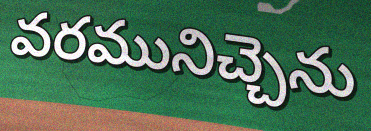
వరమునిచ్చెను